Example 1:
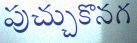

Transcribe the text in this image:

పుచ్చుకొనగ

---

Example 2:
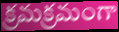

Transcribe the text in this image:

క్రమక్రమంగా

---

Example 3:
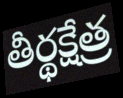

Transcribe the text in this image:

తీర్థక్షేత్ర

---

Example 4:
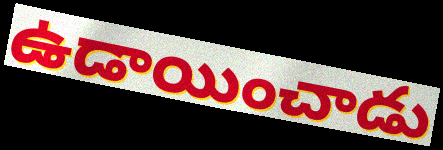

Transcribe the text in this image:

ఉడాయించాడు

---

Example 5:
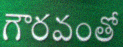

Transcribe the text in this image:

గౌరవంతో